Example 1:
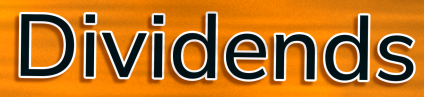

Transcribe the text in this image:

Dividends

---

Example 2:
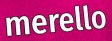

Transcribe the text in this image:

merello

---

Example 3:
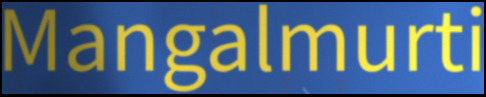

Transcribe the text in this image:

Mangalmurti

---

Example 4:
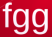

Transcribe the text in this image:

fgg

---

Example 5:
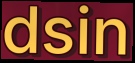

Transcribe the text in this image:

dsin